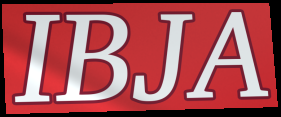
IBJA